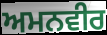
ਅਮਨਵੀਰ